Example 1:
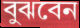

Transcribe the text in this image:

বুঝবেন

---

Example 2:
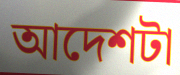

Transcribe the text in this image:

আদেশটা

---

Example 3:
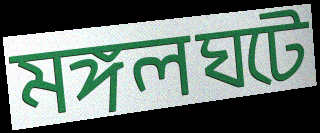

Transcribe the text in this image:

মঙ্গলঘটে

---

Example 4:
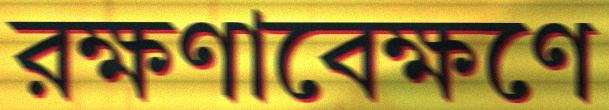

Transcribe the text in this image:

রক্ষণাবেক্ষণে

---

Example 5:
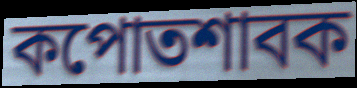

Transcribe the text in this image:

কপোতশাবক